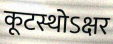
कूटस्थोऽक्षर